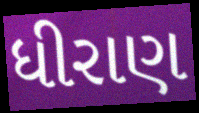
ધીરાણ